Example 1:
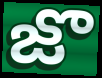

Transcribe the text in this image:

జొ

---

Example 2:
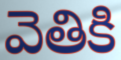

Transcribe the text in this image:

వెతికి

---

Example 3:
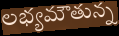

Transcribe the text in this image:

లభ్యమౌతున్న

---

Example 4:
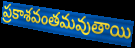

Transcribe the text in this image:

ప్రకాశవంతమవుతాయి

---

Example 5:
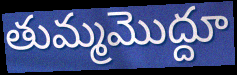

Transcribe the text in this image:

తుమ్మమొద్దూ